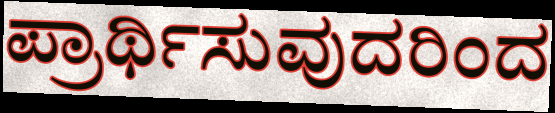
ಪ್ರಾರ್ಥಿಸುವುದರಿಂದ